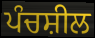
ਪੰਚਸ਼ੀਲ